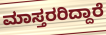
ಮಾಸ್ತರರಿದ್ದಾರೆ